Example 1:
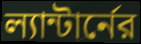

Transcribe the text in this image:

ল্যান্টার্নের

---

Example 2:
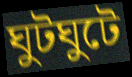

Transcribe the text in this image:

ঘুটঘুটে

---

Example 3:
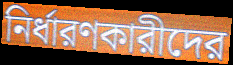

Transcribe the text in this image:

নির্ধারণকারীদের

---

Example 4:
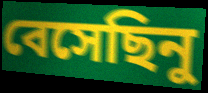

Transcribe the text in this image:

বেসেছিনু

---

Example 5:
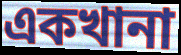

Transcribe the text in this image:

একখানা